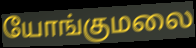
யோங்குமலை